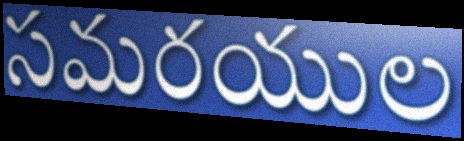
సమరయుల